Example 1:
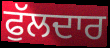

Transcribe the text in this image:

ਫੁੱਲਦਾਰ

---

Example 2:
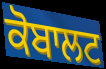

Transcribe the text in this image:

ਕੋਬਾਲਟ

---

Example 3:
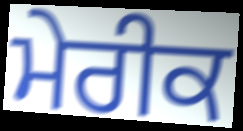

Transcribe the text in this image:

ਮੇਰੀਕ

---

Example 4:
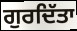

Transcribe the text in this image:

ਗੁਰਦਿੱਤਾ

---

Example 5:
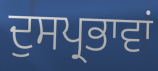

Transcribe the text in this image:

ਦੁਸਪ੍ਰਭਾਵਾਂ